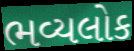
ભવ્યલોક